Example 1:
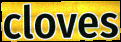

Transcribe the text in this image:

cloves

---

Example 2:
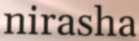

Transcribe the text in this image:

nirasha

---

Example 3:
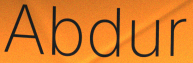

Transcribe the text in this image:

Abdur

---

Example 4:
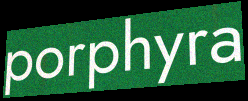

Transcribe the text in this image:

porphyra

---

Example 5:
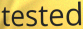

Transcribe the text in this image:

tested